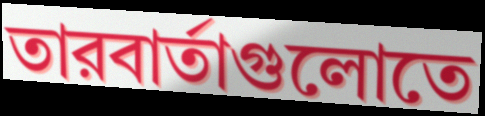
তারবার্তাগুলোতে